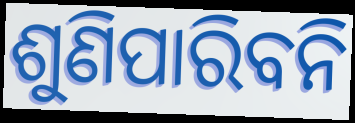
ଶୁଣିପାରିବନି